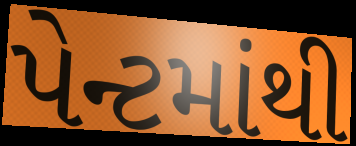
પેન્ટમાંથી